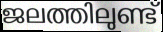
ജലത്തിലുണ്ട്